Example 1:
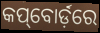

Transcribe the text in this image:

କପ୍‌ବୋର୍ଡ଼ରେ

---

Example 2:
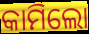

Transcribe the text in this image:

କାମିଲୋ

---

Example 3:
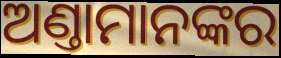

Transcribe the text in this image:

ଅଣ୍ତାମାନଙ୍କର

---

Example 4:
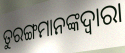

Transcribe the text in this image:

ତୁରଙ୍ଗମାନଙ୍କଦ୍ୱାରା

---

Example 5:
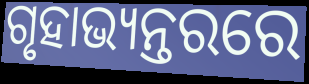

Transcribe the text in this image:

ଗୃହାଭ୍ୟନ୍ତରରେ